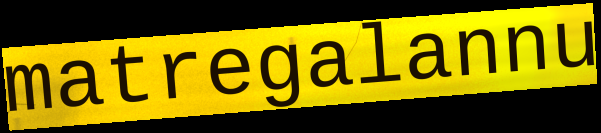
matregalannu